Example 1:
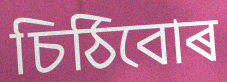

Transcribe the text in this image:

চিঠিবোৰ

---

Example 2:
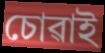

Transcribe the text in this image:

চোৱাই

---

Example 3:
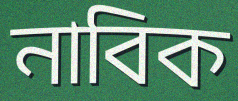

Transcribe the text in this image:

নাবিক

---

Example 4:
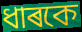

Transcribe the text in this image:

ধাৰকে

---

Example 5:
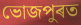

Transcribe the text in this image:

ভোজপুৰত